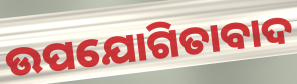
ଉପଯୋଗିତାବାଦ